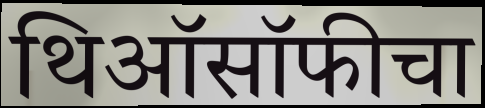
थिऑसॉफीचा